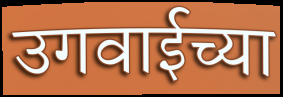
उगवाईच्या